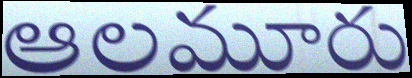
ఆలమూరు